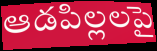
ఆడపిల్లలపై